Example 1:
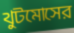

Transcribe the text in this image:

থুটমোসের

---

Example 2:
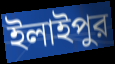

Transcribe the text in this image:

ইলাইপুর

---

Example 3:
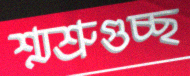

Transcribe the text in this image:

শ্মশ্রুগুচ্ছ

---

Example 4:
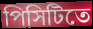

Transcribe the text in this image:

পিসিটিতে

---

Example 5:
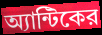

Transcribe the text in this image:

অ্যান্টিকের